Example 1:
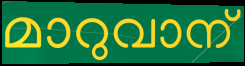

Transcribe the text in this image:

മാറുവാന്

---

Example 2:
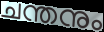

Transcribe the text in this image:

ചന്തനും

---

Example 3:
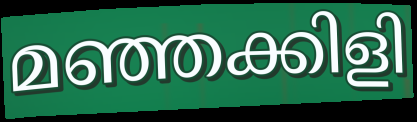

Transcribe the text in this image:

മഞ്ഞക്കിളി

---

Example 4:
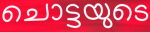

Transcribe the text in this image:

ചൊട്ടയുടെ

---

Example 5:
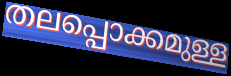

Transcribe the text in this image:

തലപ്പൊക്കമുള്ള